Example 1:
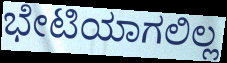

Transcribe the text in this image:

ಭೇಟಿಯಾಗಲಿಲ್ಲ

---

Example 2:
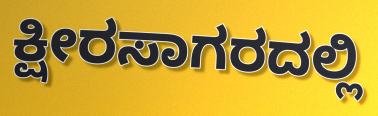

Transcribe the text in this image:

ಕ್ಷೀರಸಾಗರದಲ್ಲಿ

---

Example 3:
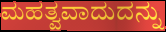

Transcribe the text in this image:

ಮಹತ್ವವಾದುದನ್ನು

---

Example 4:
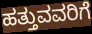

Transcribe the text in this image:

ಹತ್ತುವವರಿಗೆ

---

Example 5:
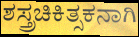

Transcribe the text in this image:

ಶಸ್ತ್ರಚಿಕಿತ್ಸಕನಾಗಿ